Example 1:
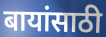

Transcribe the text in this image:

बायांसाठी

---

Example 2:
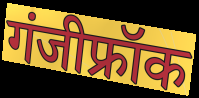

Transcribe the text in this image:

गंजीफ्रॉक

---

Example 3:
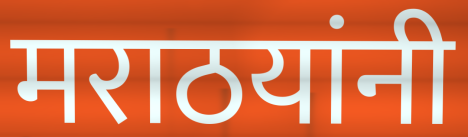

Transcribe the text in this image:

मराठयांनी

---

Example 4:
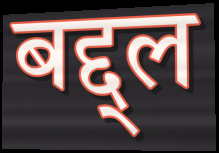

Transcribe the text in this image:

बद्द्ल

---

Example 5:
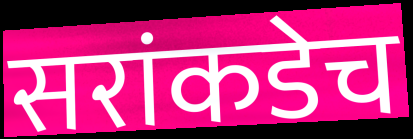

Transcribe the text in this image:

सरांकडेच